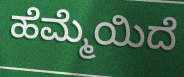
ಹೆಮ್ಮೆಯಿದೆ